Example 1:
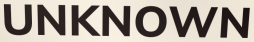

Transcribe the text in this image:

UNKNOWN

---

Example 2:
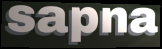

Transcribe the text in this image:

sapna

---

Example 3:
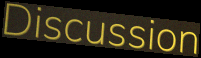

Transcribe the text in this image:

Discussion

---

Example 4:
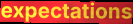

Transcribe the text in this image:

expectations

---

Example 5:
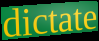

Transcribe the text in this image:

dictate